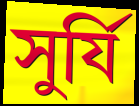
সুর্যি